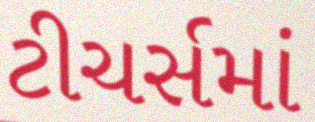
ટીચર્સમાં